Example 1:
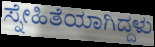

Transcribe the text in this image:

ಸ್ನೇಹಿತೆಯಾಗಿದ್ದಳು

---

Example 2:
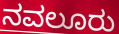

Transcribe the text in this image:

ನವಲೂರು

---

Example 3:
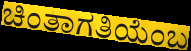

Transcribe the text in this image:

ಚಿಂತಾಗತಿಯೆಂಬ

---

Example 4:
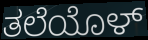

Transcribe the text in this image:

ತಲೆಯೊಳ್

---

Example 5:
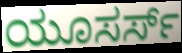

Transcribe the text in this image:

ಯೂಸರ್ಸ್